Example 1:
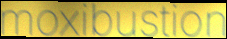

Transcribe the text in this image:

moxibustion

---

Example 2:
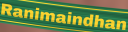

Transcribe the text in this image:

Ranimaindhan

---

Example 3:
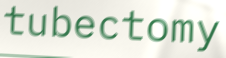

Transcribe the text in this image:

tubectomy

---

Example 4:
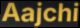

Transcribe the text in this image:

Aajchi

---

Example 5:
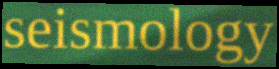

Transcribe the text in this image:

seismology